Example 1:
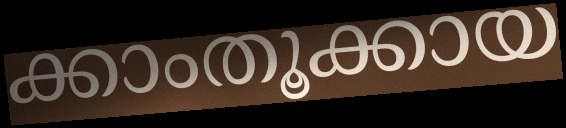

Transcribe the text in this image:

ക്കാംതൂക്കായ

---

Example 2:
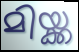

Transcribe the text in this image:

മിയ്ക്ക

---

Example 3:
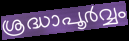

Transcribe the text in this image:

ശ്രദ്ധാപൂർവ്വം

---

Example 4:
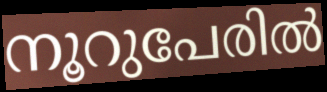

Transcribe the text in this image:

നൂറുപേരിൽ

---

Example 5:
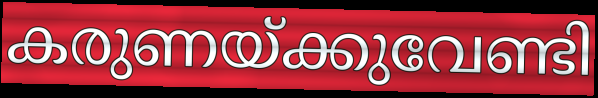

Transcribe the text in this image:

കരുണയ്ക്കുവേണ്ടി